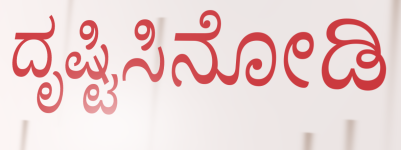
ದೃಷ್ಟಿಸಿನೋಡಿ